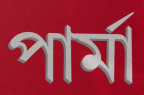
পার্মা